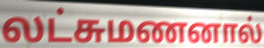
லட்சுமணனால்